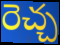
రెచ్చ